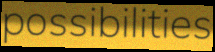
possibilities